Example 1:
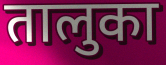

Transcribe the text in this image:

तालुका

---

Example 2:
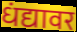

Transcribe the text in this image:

धंद्यावर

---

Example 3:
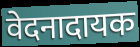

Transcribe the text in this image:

वेदनादायक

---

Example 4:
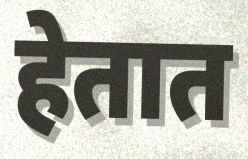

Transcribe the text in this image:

हेतात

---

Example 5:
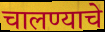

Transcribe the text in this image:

चालण्याचे